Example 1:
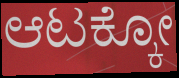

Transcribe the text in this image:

ಆಟಕ್ಕೋ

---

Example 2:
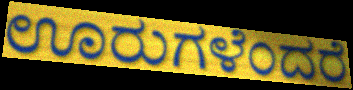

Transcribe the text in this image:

ಊರುಗಳೆಂದರೆ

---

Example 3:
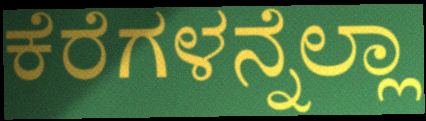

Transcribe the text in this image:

ಕೆರೆಗಳನ್ನೆಲ್ಲಾ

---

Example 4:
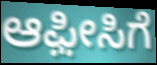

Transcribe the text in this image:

ಆಫ಼ೀಸಿಗೆ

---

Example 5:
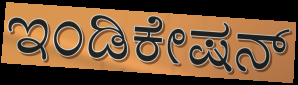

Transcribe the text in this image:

ಇಂಡಿಕೇಷನ್